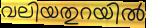
വലിയതുറയിൽ